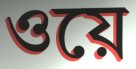
ওয়ে